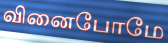
வினைபோமே